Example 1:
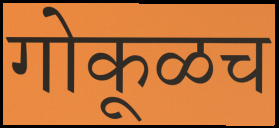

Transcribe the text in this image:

गोकूळच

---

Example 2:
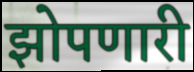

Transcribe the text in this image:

झोपणारी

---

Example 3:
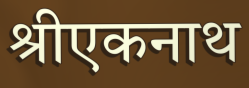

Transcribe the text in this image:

श्रीएकनाथ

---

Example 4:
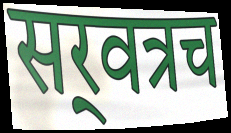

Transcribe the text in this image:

सर्वत्रच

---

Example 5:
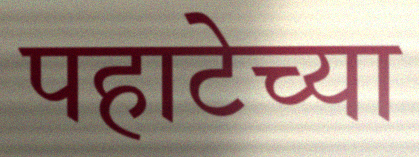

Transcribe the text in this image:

पहाटेच्या